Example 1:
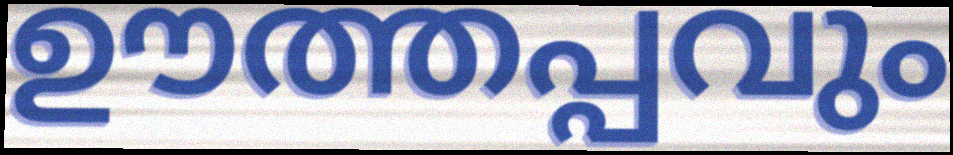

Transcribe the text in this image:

ഊത്തപ്പവും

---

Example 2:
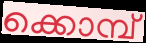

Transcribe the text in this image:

ക്കൊമ്പ്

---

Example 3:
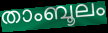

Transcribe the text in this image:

താംബൂലം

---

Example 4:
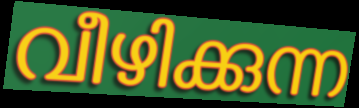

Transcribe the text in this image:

വീഴിക്കുന്ന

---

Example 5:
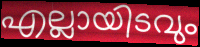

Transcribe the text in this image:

എല്ലായിടവും